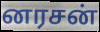
னரசன்